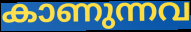
കാണുന്നവ